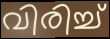
വിരിച്ച്